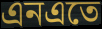
এনএতে